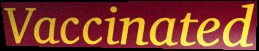
Vaccinated